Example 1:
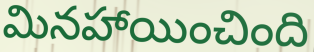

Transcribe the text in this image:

మినహాయించింది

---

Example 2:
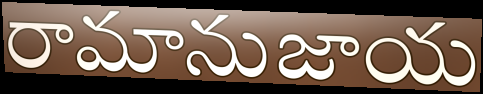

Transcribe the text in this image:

రామానుజాయ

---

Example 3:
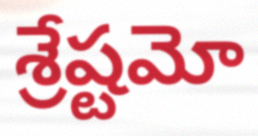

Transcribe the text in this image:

శ్రేష్టమో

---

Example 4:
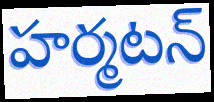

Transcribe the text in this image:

హర్మటన్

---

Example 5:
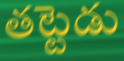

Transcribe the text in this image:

తట్టెడు